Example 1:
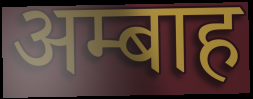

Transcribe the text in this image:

अम्बाह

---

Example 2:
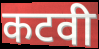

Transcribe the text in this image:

कटवी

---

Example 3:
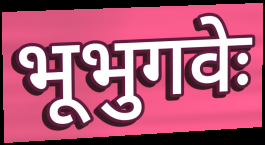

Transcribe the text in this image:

भूभुगवेः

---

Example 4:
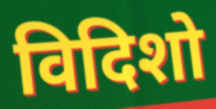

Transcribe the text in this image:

विदिशो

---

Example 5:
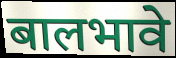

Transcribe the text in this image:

बालभावे